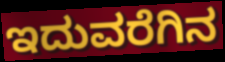
ಇದುವರೆಗಿನ